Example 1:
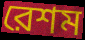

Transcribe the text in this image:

রেশম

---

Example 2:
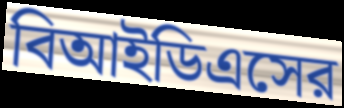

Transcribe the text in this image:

বিআইডিএসের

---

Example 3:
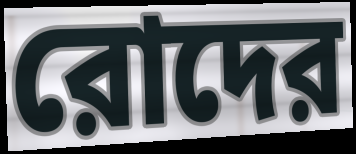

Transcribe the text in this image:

রোদের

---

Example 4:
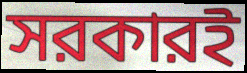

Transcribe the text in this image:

সরকারই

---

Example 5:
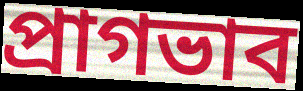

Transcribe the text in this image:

প্রাগভাব